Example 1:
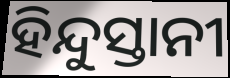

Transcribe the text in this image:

ହିନ୍ଦୁସ୍ତାନୀ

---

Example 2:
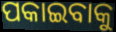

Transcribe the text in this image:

ପକାଇବାକୁ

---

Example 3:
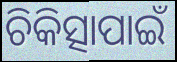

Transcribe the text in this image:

ଚିକିତ୍ସାପାଇଁ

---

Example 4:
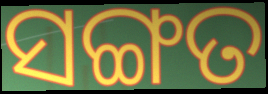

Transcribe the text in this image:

ସଙ୍ଗତ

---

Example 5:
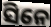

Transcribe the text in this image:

ସିନେ